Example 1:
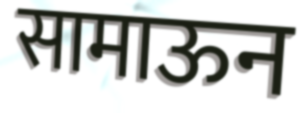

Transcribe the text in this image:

सामाऊन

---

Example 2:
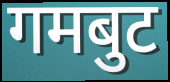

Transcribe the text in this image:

गमबुट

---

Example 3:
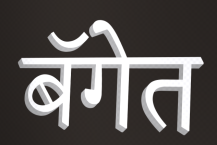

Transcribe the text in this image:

बॅगेत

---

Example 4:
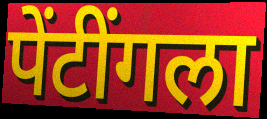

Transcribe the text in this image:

पेंटींगला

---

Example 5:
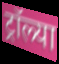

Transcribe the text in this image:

ट्रॉल्या